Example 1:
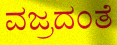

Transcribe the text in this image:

ವಜ್ರದಂತೆ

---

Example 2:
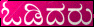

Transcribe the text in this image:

ಓಡಿದರು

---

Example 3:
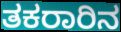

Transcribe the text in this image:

ತಕರಾರಿನ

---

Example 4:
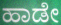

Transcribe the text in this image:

ಹಾಡೇ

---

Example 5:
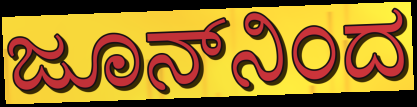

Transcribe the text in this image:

ಜೂನ್‌ನಿಂದ